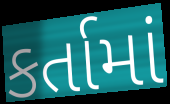
કર્તામાં